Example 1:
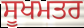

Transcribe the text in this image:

ਸੂਖਮਤਰ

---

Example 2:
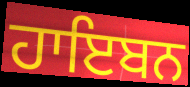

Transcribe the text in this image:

ਹਾਇਬਨ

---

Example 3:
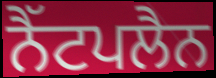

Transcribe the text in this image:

ਨੈੱਟਪਲੈਨ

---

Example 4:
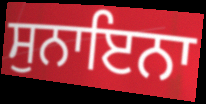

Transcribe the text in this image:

ਸੁਨਾਇਨਾ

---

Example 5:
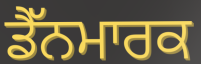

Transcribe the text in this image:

ਡੈੱਨਮਾਰਕ